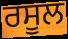
ਰਸੂਲ